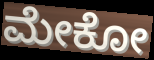
ಮೇಕೋ